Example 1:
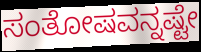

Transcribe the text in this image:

ಸಂತೋಷವನ್ನಷ್ಟೇ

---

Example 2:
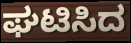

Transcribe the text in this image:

ಘಟಿಸಿದ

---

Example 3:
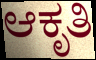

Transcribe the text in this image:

ಆಕೃತಿ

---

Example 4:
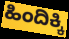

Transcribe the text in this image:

ಹಿಂದಿಕ್ಕಿ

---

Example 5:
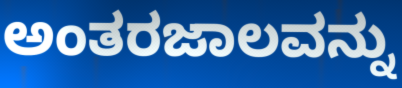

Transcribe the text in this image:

ಅಂತರಜಾಲವನ್ನು